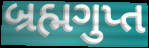
બ્રહ્મગુપ્ત